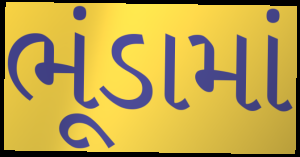
ભૂંડામાં